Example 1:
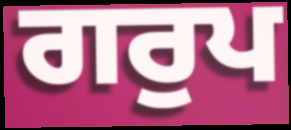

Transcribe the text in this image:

ਗਰੁਪ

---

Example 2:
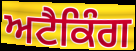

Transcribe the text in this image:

ਅਟੈਕਿੰਗ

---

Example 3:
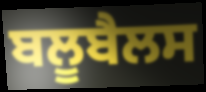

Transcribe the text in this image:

ਬਲੂਬੈਲਸ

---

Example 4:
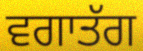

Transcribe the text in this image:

ਵਗਾਤੱਗ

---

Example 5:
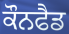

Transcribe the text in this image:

ਕੌਨਫੈਡ